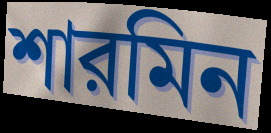
শারমিন